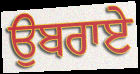
ਉਬਰਾਏ